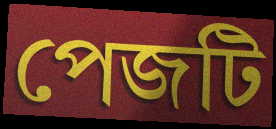
পেজটি